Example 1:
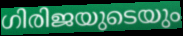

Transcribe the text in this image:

ഗിരിജയുടെയും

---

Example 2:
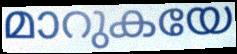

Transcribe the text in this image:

മാറുകയേ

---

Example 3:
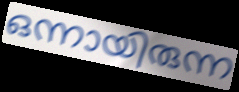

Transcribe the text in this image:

ഒന്നായിരുന്ന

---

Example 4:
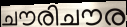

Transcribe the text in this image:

ചൗരിചൗര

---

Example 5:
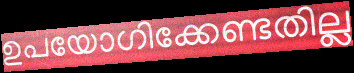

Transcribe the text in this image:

ഉപയോഗിക്കേണ്ടതില്ല